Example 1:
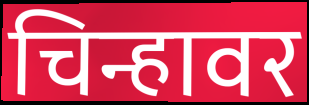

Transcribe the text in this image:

चिन्हावर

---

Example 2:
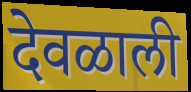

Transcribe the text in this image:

देवळाली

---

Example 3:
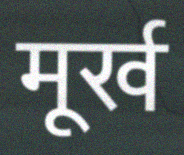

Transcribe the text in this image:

मूर्ख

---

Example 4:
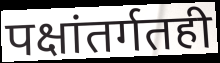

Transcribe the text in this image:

पक्षांतर्गतही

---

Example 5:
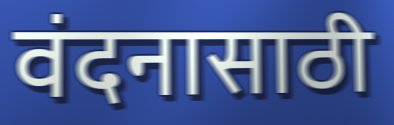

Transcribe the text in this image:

वंदनासाठी